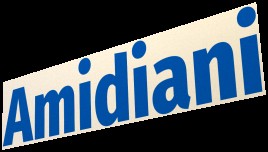
Amidiani